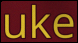
uke